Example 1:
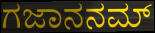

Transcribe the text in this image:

ಗಜಾನನಮ್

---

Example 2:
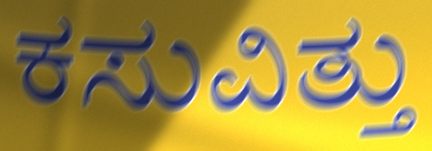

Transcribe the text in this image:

ಕಸುವಿತ್ತು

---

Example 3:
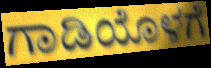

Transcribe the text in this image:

ಗಾಡಿಯೊಳಗೆ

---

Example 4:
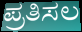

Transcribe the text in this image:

ಪ್ರತಿಸಲ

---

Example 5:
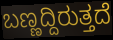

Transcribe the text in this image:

ಬಣ್ಣದ್ದಿರುತ್ತದೆ